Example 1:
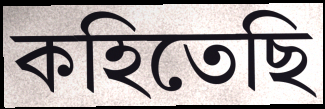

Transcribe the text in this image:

কহিতেছি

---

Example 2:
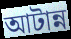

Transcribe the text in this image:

আটান্ন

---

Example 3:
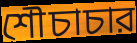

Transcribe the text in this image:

শৌচাচার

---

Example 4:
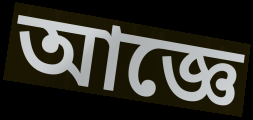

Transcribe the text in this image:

আজ্ঞে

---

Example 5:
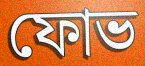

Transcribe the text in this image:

ফোভ